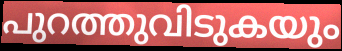
പുറത്തുവിടുകയും